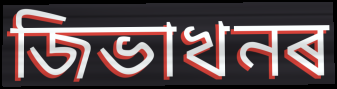
জিভাখনৰ